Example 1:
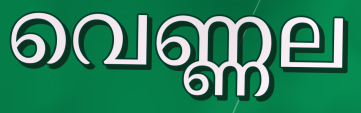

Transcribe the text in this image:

വെണ്ണല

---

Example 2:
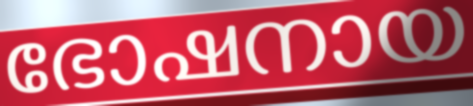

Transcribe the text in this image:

ഭോഷനായ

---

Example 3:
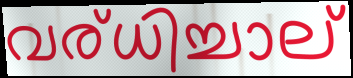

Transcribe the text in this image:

വര്ധിച്ചാല്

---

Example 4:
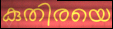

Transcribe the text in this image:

കുതിരയെ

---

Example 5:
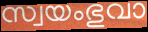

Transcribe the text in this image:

സ്വയംഭുവാ